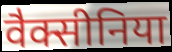
वैक्सीनिया